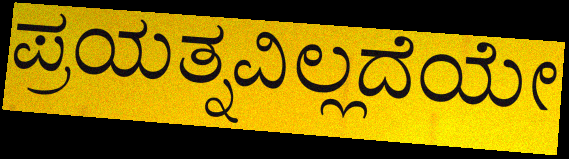
ಪ್ರಯತ್ನವಿಲ್ಲದೆಯೇ